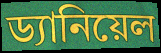
ড্যানিয়েল